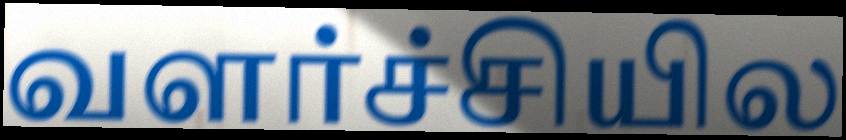
வளர்ச்சியில